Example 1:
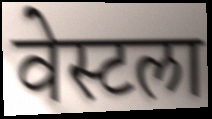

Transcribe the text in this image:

वेस्टला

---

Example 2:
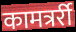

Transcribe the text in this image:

कामत्रर्री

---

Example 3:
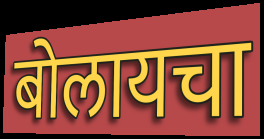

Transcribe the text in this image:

बोलायचा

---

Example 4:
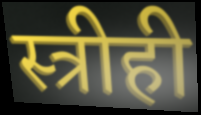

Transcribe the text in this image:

स्त्रीही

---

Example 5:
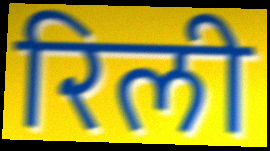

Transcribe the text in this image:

रिली